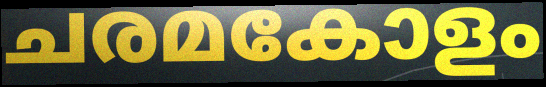
ചരമകോളം